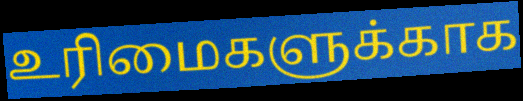
உரிமைகளுக்காக